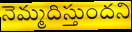
నెమ్మదిస్తుందని